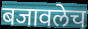
बजावलेच